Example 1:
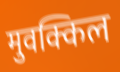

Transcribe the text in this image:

मुवक्किल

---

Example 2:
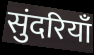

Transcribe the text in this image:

सुंदरियाँ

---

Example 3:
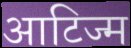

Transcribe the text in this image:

आटिज्म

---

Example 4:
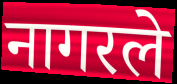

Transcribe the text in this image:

नागरले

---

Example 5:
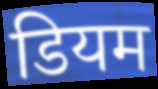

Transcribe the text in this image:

डियम